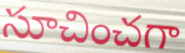
సూచించగా